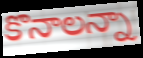
కొనాలన్నా